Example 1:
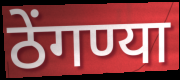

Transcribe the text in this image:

ठेंगण्या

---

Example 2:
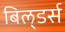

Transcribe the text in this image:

बिल्डर्स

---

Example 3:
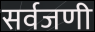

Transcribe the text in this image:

सर्वजणी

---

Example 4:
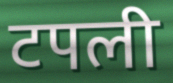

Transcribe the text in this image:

टपली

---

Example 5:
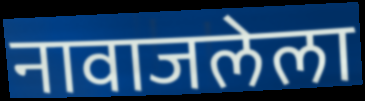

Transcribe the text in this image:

नावाजलेला